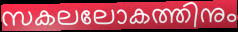
സകലലോകത്തിനും